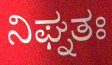
ನಿಘ್ನತಃ